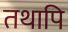
तथापि